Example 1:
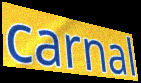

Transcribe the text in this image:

carnal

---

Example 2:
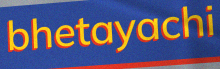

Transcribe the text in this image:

bhetayachi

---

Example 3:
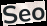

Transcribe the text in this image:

Seo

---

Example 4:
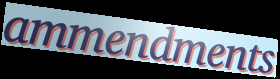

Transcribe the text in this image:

ammendments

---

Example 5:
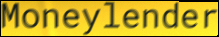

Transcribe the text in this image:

Moneylender